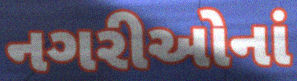
નગરીઓનાં